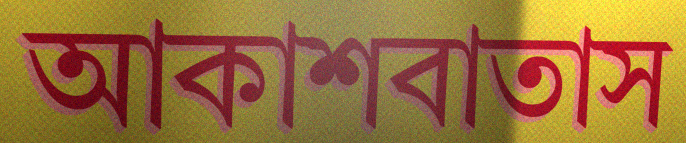
আকাশবাতাস